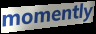
momently